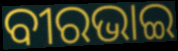
ବୀରଭାଇ